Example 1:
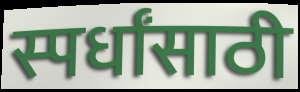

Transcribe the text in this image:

स्पर्धांसाठी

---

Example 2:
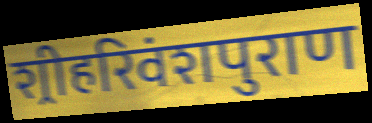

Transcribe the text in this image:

श्रीहरिवंशपुराण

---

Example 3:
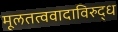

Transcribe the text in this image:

मूलतत्ववादाविरुद्ध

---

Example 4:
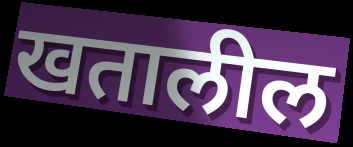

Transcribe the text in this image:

खतालील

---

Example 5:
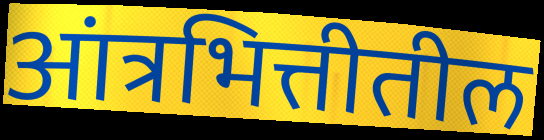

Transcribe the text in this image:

आंत्रभित्तीतील